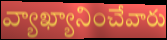
వ్యాఖ్యానించేవారు